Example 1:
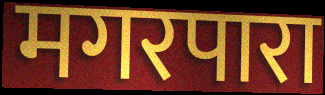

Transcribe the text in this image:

मगरपारा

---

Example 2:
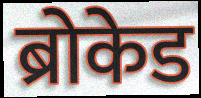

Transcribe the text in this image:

ब्रोकेड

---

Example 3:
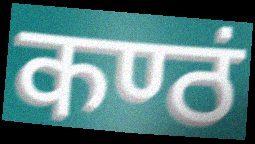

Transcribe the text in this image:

कण्ठं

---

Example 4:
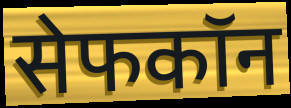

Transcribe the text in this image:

सेफकॉन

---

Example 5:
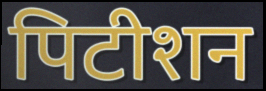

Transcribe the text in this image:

पिटीशन